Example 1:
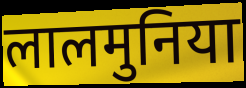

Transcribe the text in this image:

लालमुनिया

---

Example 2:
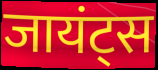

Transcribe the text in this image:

जायंट्स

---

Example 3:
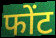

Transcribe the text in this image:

फोंट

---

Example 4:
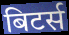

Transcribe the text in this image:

बिटर्स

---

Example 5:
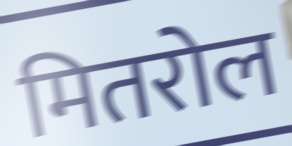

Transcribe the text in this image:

मितरोल